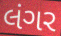
લંગર